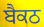
ਬੈਕਠ